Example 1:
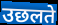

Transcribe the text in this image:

उछलते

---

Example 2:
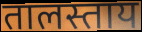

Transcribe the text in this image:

तालस्ताय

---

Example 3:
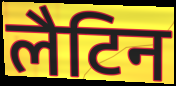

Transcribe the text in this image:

लैटिन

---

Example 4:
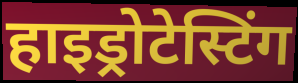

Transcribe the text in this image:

हाइड्रोटेस्टिंग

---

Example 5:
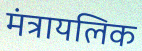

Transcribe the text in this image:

मंत्रायलिक